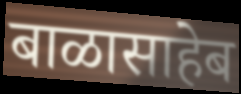
बाळासाहेब